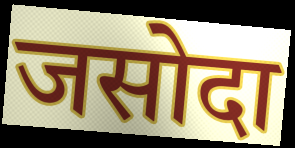
जसोदा